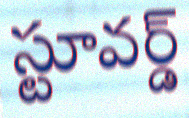
స్టూవర్డ్